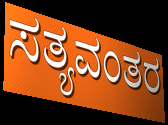
ಸತ್ಯವಂತರ